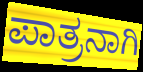
ಪಾತ್ರನಾಗಿ